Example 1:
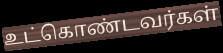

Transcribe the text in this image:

உட்கொண்டவர்கள்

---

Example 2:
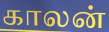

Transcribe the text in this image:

காலன்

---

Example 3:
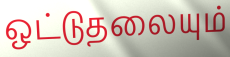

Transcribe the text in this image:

ஒட்டுதலையும்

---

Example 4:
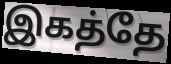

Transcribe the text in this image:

இகத்தே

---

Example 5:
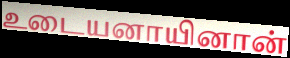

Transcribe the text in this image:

உடையனாயினான்